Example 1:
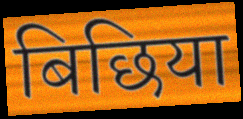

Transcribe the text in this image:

बिछिया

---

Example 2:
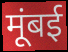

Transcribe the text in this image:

मूंबई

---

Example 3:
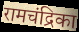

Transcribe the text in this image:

रामचंद्रिका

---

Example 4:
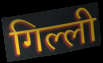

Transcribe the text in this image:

गिल्ली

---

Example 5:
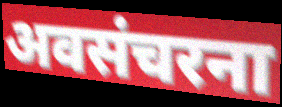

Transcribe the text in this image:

अवसंचरना